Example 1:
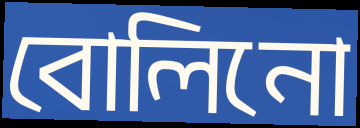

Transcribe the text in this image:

বোলিনো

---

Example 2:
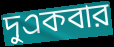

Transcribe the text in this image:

দুএকবার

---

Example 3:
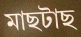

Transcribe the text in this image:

মাছটাছ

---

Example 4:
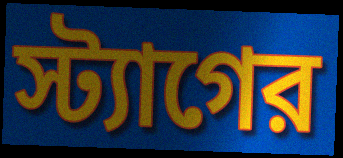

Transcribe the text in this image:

স্ট্যাগের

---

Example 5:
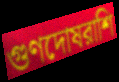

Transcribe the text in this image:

গুণদোষরাশি